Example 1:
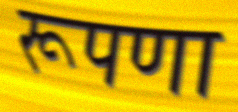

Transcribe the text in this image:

रूपणा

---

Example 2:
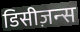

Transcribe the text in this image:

डिसीज़न्स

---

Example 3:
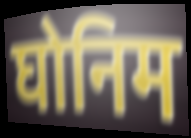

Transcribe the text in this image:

घोनिम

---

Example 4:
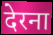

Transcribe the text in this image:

देरना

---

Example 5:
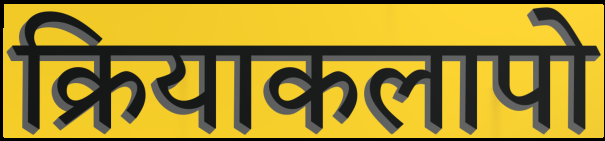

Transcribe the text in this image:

क्रियाकलापो